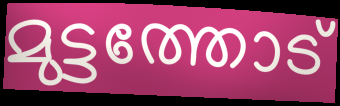
മുട്ടത്തോട്